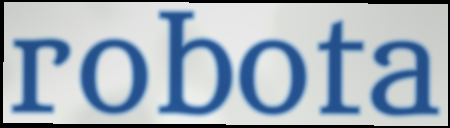
robota